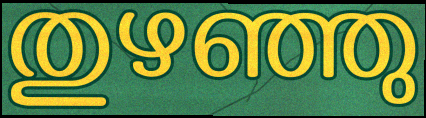
തുഴഞ്ഞു